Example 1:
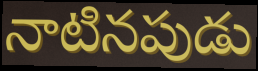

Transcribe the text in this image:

నాటినపుడు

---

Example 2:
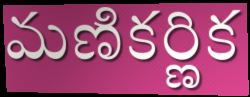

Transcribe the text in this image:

మణికర్ణిక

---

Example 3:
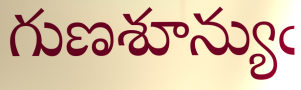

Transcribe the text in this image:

గుణశూన్యుఁ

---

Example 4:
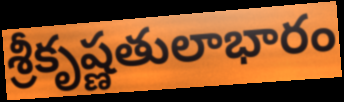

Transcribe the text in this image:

శ్రీకృష్ణతులాభారం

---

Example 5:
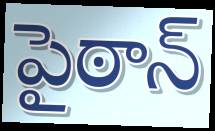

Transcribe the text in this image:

పైఠాన్